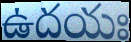
ఉదయః